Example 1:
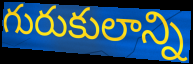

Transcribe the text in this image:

గురుకులాన్ని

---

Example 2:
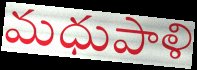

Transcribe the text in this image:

మధుపాళి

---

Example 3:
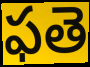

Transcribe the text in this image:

ఫతె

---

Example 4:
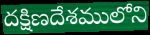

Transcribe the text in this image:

దక్షిణదేశములోని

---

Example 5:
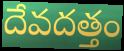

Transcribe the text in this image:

దేవదత్తం